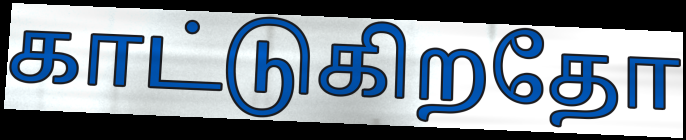
காட்டுகிறதோ